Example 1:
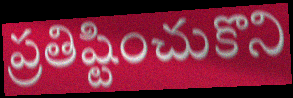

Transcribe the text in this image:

ప్రతిష్టించుకొని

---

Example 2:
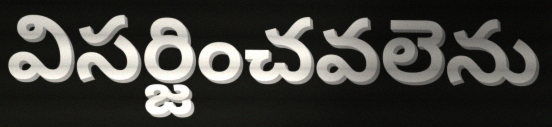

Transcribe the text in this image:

విసర్జించవలెను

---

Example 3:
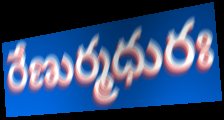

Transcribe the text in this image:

రేణుర్మధురః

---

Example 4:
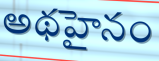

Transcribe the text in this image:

అథహైనం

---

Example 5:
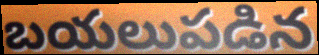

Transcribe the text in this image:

బయలుపడిన